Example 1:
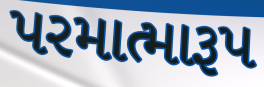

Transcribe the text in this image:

પરમાત્મારૂપ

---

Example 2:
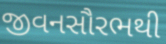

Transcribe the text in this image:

જીવનસૌરભથી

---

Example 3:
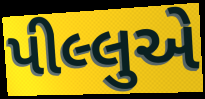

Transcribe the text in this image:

પીલ્લુએ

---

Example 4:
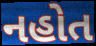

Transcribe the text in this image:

નહોત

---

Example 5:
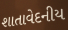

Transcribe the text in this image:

શાતાવેદનીય